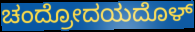
ಚಂದ್ರೋದಯದೊಳ್